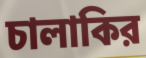
চালাকির